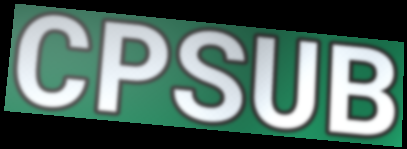
CPSUB